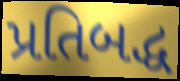
પ્રતિબદ્ધ